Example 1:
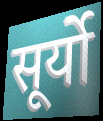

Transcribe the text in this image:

सूर्यो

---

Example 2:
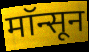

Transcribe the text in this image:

मॉन्सून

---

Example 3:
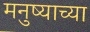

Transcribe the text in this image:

मनुष्याच्या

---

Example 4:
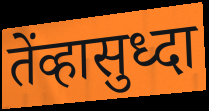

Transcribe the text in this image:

तेंव्हासुध्दा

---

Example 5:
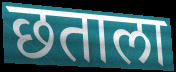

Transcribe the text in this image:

छताला